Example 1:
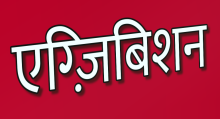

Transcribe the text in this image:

एग्ज़िबिशन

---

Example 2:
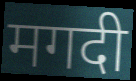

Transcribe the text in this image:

मगदी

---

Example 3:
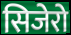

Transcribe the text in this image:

सिजेरो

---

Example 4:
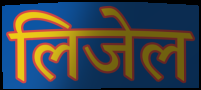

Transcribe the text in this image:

लिजेल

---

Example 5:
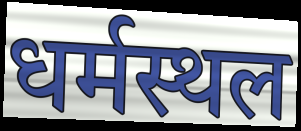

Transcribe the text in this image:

धर्मस्थल